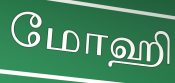
மோஹி